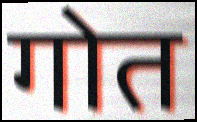
गोत